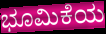
ಭೂಮಿಕೆಯ